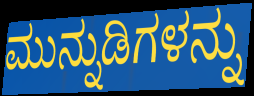
ಮುನ್ನುಡಿಗಳನ್ನು